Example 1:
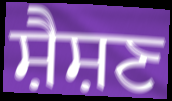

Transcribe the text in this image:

ਸ਼ੈਸ਼ਣ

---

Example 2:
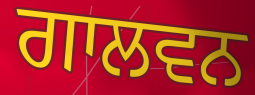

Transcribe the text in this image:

ਗਾਲਵਨ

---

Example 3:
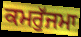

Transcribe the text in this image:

ਕਮਰੁੱਜਮਾ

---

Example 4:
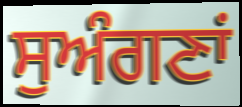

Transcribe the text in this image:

ਸੁਅੰਗਣਾਂ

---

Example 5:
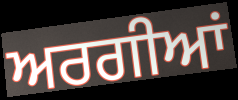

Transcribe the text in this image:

ਅਰਗੀਆਂ